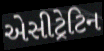
એસીટ્રેટિન